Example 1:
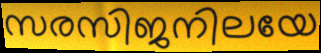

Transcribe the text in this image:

സരസിജനിലയേ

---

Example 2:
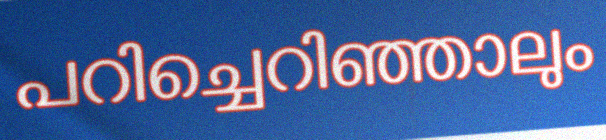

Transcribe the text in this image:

പറിച്ചെറിഞ്ഞാലും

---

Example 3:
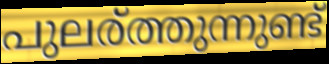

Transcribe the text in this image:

പുലര്ത്തുന്നുണ്ട്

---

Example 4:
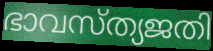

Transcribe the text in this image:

ഭാവസ്ത്യജതി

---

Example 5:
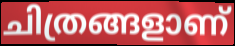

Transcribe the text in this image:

ചിത്രങ്ങളാണ്